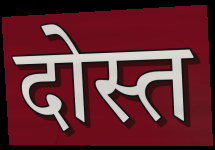
दोस्‍त